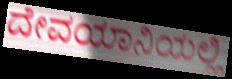
ದೇವಯಾನಿಯಲ್ಲಿ